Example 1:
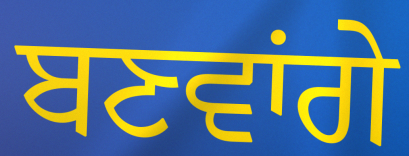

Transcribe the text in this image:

ਬਣਵਾਂਗੇ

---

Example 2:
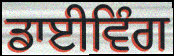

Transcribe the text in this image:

ਡਾਈਵਿੰਗ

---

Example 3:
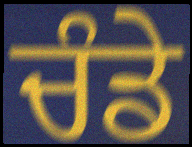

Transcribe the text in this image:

ਚੰਡੇ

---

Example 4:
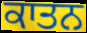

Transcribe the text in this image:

ਕਾਤਨ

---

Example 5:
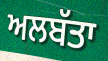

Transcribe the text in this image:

ਅਲਬੱਤਾ